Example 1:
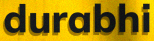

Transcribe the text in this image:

durabhi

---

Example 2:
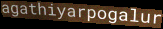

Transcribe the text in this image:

agathiyarpogalur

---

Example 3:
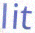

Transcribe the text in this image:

Iit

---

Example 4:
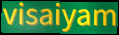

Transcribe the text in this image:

visaiyam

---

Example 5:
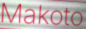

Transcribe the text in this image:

Makoto